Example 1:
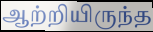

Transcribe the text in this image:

ஆற்றியிருந்த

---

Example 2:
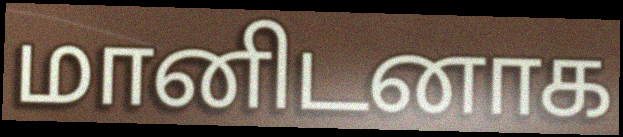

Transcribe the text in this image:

மானிடனாக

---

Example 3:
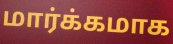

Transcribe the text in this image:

மார்க்கமாக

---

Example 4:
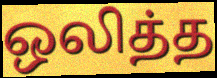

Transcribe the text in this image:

ஒலித்த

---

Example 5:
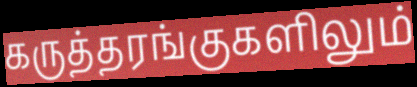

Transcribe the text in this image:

கருத்தரங்குகளிலும்